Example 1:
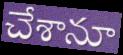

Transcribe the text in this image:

చేశానూ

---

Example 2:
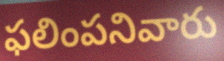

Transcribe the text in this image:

ఫలింపనివారు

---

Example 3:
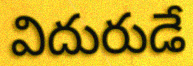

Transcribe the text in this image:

విదురుడే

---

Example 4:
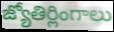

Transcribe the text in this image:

జ్యోతిర్లింగాలు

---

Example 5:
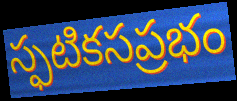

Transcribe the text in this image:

స్ఫటికసప్రభం